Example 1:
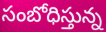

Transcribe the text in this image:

సంబోధిస్తున్న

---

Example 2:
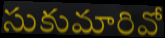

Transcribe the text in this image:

సుకుమారివో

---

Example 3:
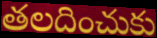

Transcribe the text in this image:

తలదించుకు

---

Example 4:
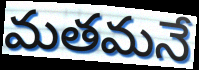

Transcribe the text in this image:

మతమనే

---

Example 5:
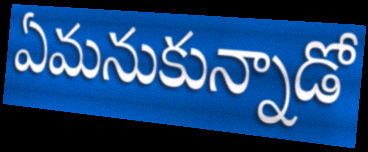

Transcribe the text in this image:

ఏమనుకున్నాడో